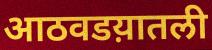
आठवडय़ातली